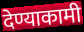
देण्याकामी